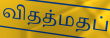
விதத்மதப்